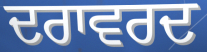
ਦਰਾਵਰਦ